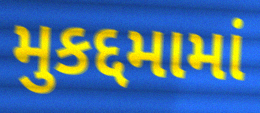
મુકદ્દમામાં